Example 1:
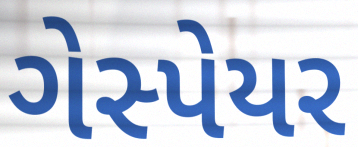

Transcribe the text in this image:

ગેસ્પેયર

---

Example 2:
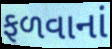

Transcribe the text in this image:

ફળવાનાં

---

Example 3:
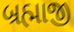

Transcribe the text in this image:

બ્રહ્માજી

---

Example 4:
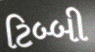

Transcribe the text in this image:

ટિબ્બી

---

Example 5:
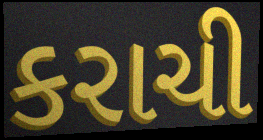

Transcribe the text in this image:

કરાચી